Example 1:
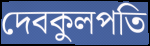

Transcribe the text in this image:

দেবকুলপতি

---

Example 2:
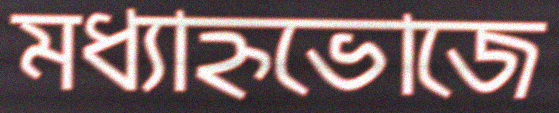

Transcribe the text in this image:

মধ্যাহ্নভোজে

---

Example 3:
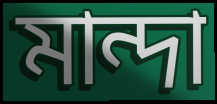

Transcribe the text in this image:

মান্দা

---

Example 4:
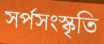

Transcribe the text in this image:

সর্পসংস্কৃতি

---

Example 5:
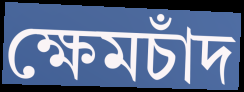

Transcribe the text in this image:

ক্ষেমচাঁদ